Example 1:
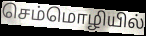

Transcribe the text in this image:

செம்மொழியில்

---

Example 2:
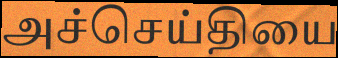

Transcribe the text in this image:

அச்செய்தியை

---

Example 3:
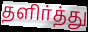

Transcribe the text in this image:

தளிர்த்து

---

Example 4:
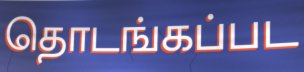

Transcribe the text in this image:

தொடங்கப்பட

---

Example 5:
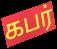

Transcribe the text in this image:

கபர்